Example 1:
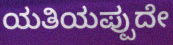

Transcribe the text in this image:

ಯತಿಯಪ್ಪುದೇ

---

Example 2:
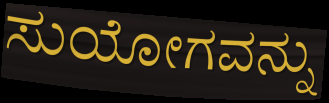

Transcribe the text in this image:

ಸುಯೋಗವನ್ನು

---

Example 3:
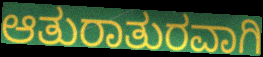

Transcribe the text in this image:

ಆತುರಾತುರವಾಗಿ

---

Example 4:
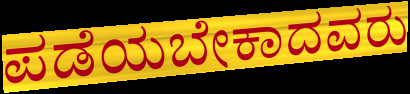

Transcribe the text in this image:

ಪಡೆಯಬೇಕಾದವರು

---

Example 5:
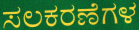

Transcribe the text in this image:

ಸಲಕರಣೆಗಳ